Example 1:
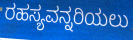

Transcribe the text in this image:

ರಹಸ್ಯವನ್ನರಿಯಲು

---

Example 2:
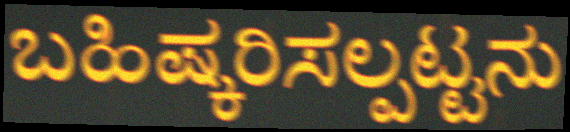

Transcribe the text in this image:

ಬಹಿಷ್ಕರಿಸಲ್ಪಟ್ಟನು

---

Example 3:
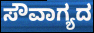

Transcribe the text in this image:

ಸೌವಾಗ್ಯದ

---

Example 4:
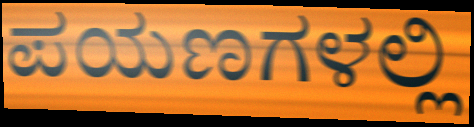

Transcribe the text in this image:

ಪಯಣಗಳಲ್ಲಿ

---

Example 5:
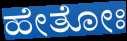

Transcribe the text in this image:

ಹೇತೋಃ